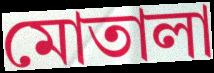
মোতালা